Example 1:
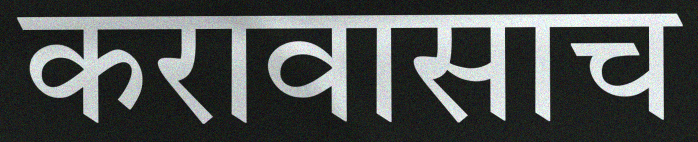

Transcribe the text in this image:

करावासाच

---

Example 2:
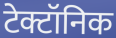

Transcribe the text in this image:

टेक्टॉनिक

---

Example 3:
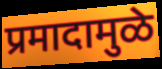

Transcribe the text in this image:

प्रमादामुळे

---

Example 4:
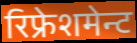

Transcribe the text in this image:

रिफ्रेशमेन्ट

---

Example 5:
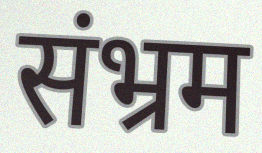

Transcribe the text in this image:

संभ्रम